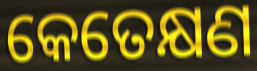
କେତେକ୍ଷଣ